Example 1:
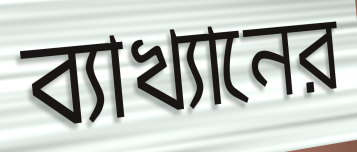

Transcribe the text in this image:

ব্যাখ্যানের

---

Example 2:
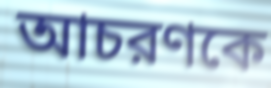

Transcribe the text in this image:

আচরণকে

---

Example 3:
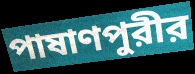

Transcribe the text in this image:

পাষাণপুরীর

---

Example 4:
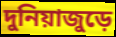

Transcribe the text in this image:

দুনিয়াজুড়ে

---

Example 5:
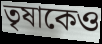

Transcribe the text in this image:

তৃষাকেও